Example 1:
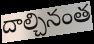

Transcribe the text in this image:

దాల్చినంత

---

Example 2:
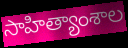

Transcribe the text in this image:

సాహిత్యాంశాల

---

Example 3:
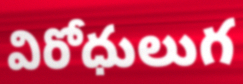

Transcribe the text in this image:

విరోధులుగ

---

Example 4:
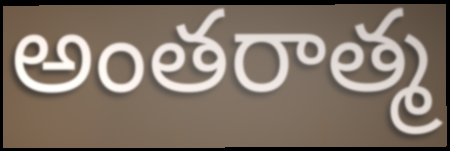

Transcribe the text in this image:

అంతరాత్మ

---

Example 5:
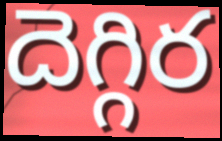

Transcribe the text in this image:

దెగ్గిర